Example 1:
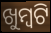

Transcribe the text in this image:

ଖୁମ୍ବଟି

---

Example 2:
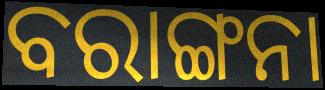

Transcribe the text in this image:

ବରାଙ୍ଗନା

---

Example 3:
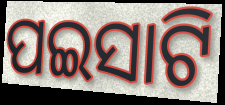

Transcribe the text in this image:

ପଇସାଟି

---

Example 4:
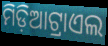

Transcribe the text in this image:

ମିଡ଼ିଆଟ୍ରାଏଲ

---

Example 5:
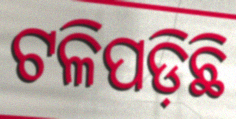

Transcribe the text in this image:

ଟଳିପଡ଼ିଛି